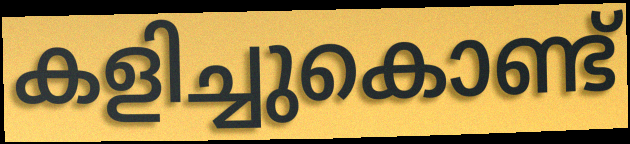
കളിച്ചുകൊണ്ട്